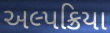
અલ્પક્રિયા